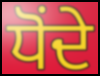
ਧੋਂਦੇ